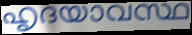
ഹൃദയാവസ്ഥ